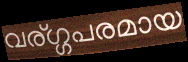
വര്ഗ്ഗപരമായ